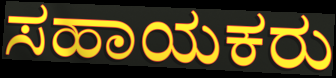
ಸಹಾಯಕರು